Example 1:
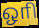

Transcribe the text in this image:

ஒரி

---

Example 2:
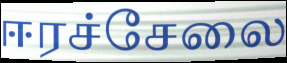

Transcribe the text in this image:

ஈரச்சேலை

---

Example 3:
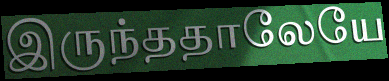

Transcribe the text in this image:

இருந்ததாலேயே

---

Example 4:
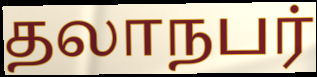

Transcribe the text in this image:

தலாநபர்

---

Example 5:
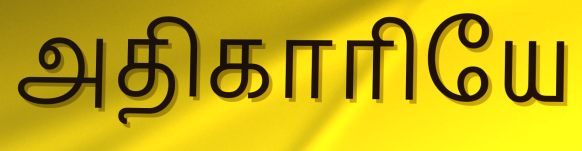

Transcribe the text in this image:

அதிகாரியே